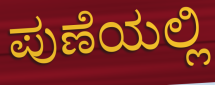
ಪುಣೆಯಲ್ಲಿ